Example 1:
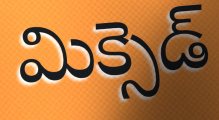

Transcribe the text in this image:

మిక్సెడ్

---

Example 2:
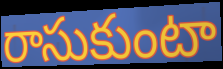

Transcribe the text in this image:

రాసుకుంటా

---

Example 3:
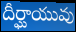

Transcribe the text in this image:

దీర్ఘాయువు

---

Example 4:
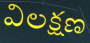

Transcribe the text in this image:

విలక్షణ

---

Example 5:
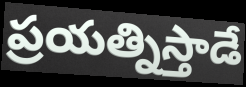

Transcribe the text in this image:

ప్రయత్నిస్తాడే